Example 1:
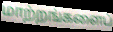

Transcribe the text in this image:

மாற்றங்களைப்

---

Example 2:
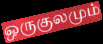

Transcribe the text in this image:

ஒருகுலமும்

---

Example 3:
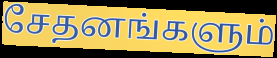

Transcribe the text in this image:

சேதனங்களும்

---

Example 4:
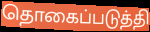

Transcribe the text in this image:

தொகைப்படுத்தி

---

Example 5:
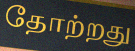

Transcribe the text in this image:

தோற்றது